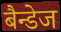
बैन्डेज